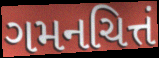
ગમનચિત્તં